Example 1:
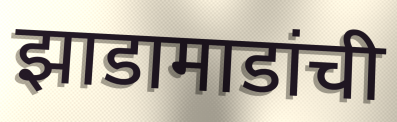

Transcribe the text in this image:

झाडामाडांची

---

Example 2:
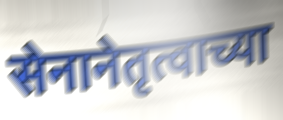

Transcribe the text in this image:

सेनानेतृत्वाच्या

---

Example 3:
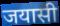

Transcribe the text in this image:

जयासी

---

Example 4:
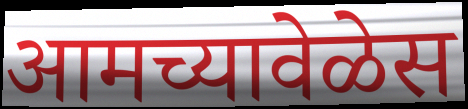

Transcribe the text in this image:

आमच्यावेळेस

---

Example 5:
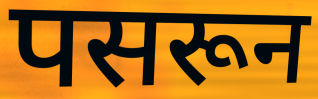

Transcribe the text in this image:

पसरून